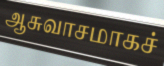
ஆசுவாசமாகச்